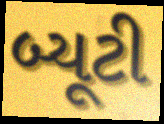
બ્યૂટી